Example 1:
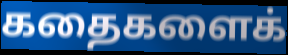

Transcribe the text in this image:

கதைகளைக்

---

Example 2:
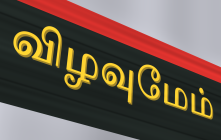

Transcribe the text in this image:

விழவுமேம்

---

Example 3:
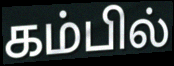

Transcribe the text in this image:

கம்பில்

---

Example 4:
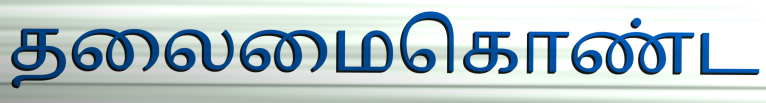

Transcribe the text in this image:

தலைமைகொண்ட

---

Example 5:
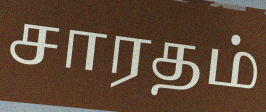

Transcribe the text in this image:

சாரதம்